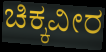
ಚಿಕ್ಕವೀರ